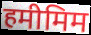
हमीमिम